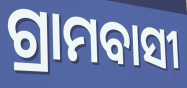
ଗ୍ରାମବାସୀ